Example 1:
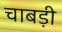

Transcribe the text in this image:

चाबड़ी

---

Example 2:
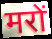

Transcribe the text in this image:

मरों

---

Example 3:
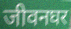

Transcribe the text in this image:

जीवनघर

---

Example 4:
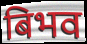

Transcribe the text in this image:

बिभव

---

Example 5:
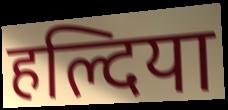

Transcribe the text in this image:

हल्दिया